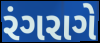
રંગરાગે